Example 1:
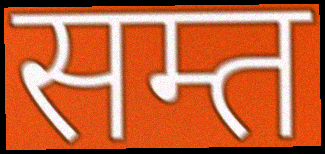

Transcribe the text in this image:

सम्त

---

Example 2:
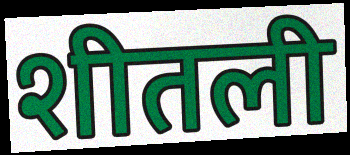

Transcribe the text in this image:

शीतली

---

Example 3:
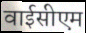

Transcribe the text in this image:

वाईसीएम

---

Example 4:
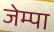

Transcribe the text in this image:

जेम्पा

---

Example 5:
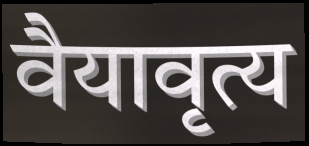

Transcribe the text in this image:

वैयावृत्य